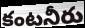
కంటనీరు